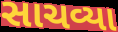
સાચવ્યા